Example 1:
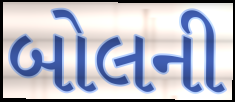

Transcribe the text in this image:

બોલની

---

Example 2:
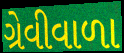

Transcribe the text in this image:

ગ્રેવીવાળા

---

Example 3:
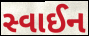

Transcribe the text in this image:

સ્વાઈન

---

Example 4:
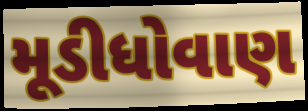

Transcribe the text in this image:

મૂડીધોવાણ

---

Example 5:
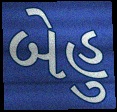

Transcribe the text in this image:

બેહુ